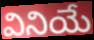
వినియే